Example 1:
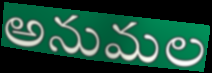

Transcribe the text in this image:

అనుమల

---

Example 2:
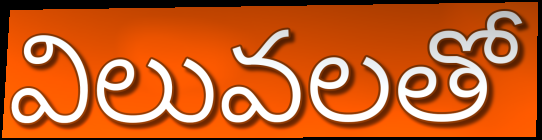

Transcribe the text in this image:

విలువలతో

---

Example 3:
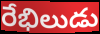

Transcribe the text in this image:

రేభిలుడు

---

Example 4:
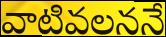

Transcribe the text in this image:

వాటివలననే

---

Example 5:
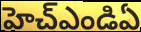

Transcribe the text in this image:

హెచ్ఎండిఏ